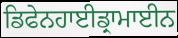
ਡਿਫੇਨਹਾਈਡ੍ਰਾਮਾਈਨ